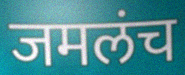
जमलंच